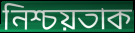
নিশ্চয়তাক